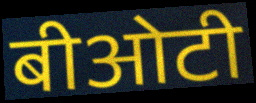
बीओटी